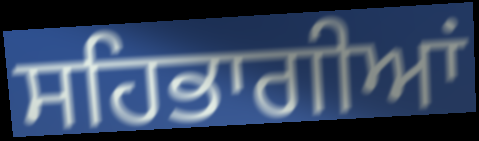
ਸਹਿਭਾਗੀਆਂ